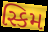
સ્કિમ